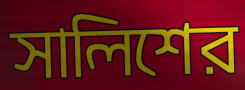
সালিশের